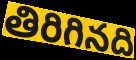
తిరిగినది